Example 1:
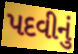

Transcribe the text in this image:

પદવીનું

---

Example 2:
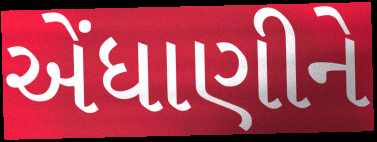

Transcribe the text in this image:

એંધાણીને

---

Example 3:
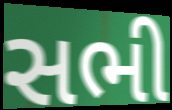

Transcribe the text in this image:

સભી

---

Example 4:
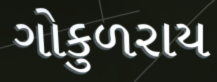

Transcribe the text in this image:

ગોકુળરાય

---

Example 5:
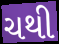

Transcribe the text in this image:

ચથી